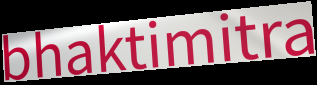
bhaktimitra